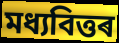
মধ্যবিত্তৰ